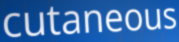
cutaneous